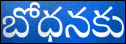
బోధనకు